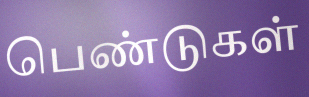
பெண்டுகள்